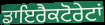
ਡਾਇਰੈਕਟੋਰੇਟਾਂ